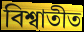
বিশ্বাতীত